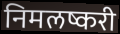
निमलष्करी